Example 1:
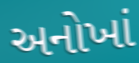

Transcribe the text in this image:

અનોખાં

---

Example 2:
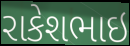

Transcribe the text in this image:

રાકેશભાઇ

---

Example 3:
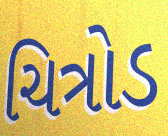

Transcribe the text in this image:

ચિત્રોડ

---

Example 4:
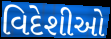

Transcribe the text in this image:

વિદેશીઓ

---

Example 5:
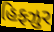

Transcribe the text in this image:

હિફ્ઝુર